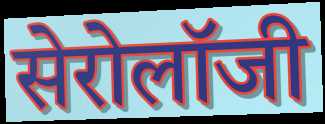
सेरोलॉजी